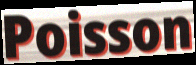
Poisson